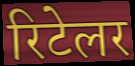
रिटेलर